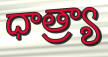
ధాత్ర్యా